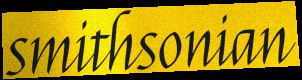
smithsonian